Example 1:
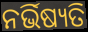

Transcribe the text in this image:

ନର୍ଭିଷ୍ୟତି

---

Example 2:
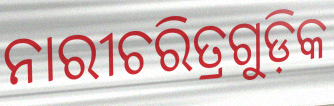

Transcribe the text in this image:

ନାରୀଚରିତ୍ରଗୁଡ଼ିକ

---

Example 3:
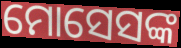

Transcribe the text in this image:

ମୋସେସଙ୍କ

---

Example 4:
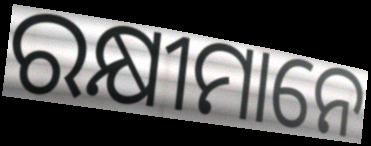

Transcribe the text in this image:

ରକ୍ଷୀମାନେ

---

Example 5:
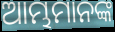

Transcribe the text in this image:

ଆମ୍ଭମାନଙ୍କ